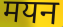
मयन